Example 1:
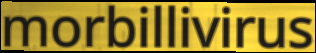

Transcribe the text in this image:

morbillivirus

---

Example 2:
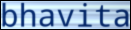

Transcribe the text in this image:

bhavita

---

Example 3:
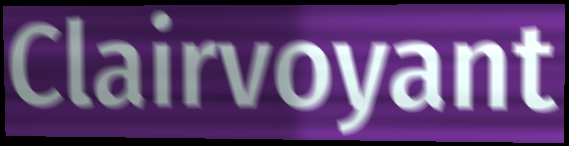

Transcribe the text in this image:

Clairvoyant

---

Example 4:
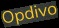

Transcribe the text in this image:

Opdivo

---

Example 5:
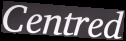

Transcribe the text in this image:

Centred